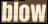
blow